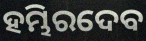
ହମ୍ଭିରଦେବ